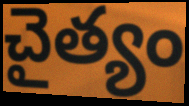
చైత్యం